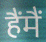
हैंमैं